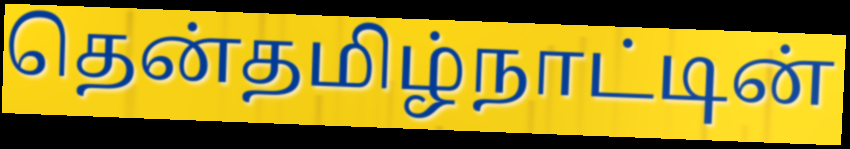
தென்தமிழ்நாட்டின்